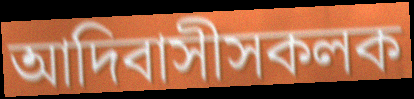
আদিবাসীসকলক